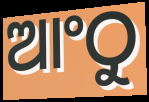
ଆଂଠୁ